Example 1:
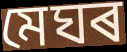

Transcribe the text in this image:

মেঘৰ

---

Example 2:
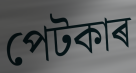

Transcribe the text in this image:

পেটকাৰ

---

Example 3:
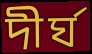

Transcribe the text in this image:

দীৰ্ঘ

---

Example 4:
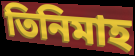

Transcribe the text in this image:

তিনিমাহ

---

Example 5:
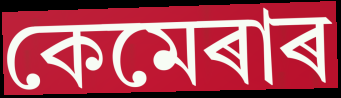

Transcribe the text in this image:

কেমেৰাৰ